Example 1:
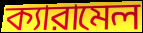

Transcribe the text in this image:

ক্যারামেল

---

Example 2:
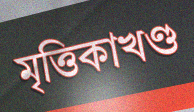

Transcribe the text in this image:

মৃত্তিকাখণ্ড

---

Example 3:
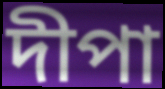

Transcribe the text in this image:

দীপা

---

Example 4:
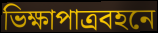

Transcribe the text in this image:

ভিক্ষাপাত্রবহনে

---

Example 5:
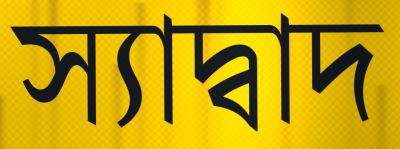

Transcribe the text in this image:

স্যাদ্বাদ